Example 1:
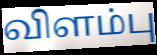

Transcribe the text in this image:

விளம்பு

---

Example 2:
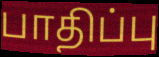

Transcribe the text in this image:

பாதிப்பு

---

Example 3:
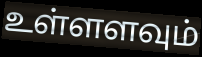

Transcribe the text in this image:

உள்ளளவும்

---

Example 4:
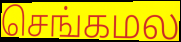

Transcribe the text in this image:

செங்கமல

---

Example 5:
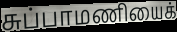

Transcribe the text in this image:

சுப்பாமணியைக்